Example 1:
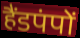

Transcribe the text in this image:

हैंडपंपों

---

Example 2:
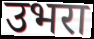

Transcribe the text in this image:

उभरा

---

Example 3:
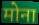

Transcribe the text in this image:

मोना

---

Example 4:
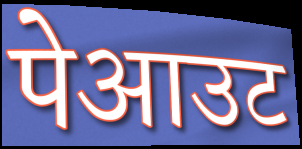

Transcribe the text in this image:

पेआउट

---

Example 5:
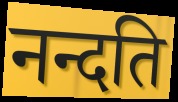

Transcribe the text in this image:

नन्दति